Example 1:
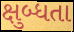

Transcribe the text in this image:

ક્ષુબ્ધતા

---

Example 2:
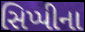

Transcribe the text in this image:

સિપ્પીના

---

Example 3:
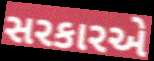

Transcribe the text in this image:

સરકારએ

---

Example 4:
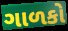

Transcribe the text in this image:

ગાળકો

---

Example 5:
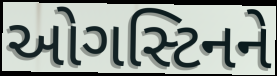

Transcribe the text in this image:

ઓગસ્ટિનને